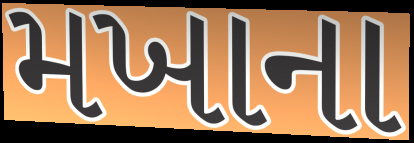
મખાના